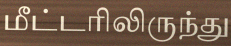
மீட்டரிலிருந்து